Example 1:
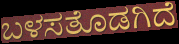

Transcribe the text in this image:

ಬಳಸತೊಡಗಿದೆ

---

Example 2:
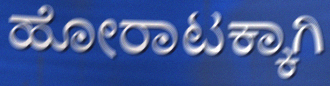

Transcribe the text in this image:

ಹೋರಾಟಕ್ಕಾಗಿ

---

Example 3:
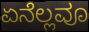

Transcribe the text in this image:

ಏನೆಲ್ಲವೂ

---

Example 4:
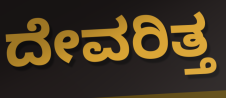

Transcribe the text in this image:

ದೇವರಿತ್ತ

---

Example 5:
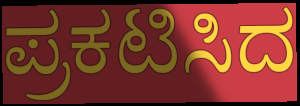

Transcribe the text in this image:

ಪ್ರಕಟಿಸಿದ